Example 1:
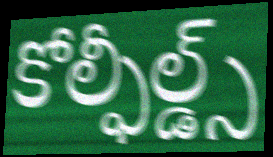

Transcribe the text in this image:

కోల్ఫీల్డ్స్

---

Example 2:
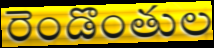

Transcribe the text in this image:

రెండొంతుల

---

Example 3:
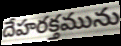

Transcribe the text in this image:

దేహరక్తమును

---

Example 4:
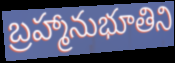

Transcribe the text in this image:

బ్రహ్మానుభూతిని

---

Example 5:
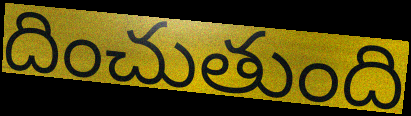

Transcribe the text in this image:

దించుతుంది